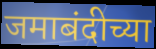
जमाबंदीच्या